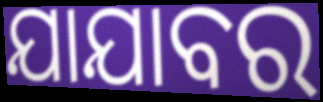
ଯାଯାବର